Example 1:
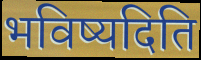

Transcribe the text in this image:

भविष्यदिति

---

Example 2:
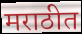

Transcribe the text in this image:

मराठीत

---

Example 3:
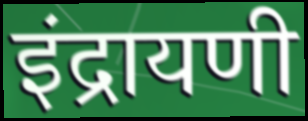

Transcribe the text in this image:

इंद्रायणी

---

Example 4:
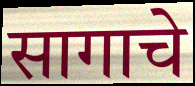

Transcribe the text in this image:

सागाचे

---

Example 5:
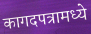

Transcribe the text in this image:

कागदपत्रामध्ये